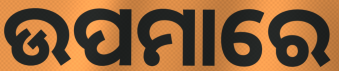
ଉପମାରେ